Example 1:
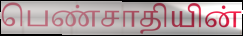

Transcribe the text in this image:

பெண்சாதியின்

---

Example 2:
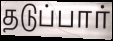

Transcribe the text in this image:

தடுப்பார்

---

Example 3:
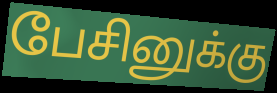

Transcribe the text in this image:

பேசினுக்கு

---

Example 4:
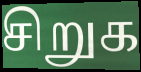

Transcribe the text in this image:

சிறுக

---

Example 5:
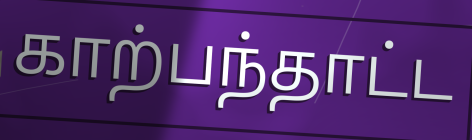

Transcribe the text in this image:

காற்பந்தாட்ட